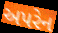
અપરેન